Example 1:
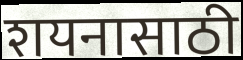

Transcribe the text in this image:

शयनासाठी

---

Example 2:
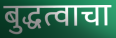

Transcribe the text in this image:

बुद्धत्वाचा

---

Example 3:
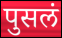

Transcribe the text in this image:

पुसलं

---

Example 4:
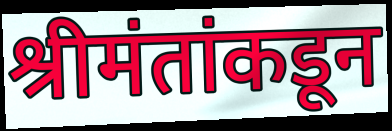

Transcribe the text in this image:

श्रीमंतांकडून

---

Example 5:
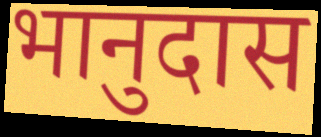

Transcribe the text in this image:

भानुदास